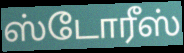
ஸ்டோரீஸ்